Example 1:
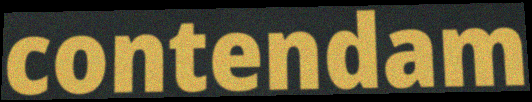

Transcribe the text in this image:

contendam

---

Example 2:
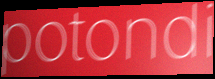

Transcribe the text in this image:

potondi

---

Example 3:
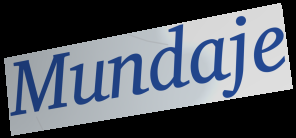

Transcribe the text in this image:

Mundaje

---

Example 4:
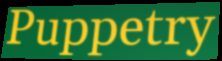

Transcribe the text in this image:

Puppetry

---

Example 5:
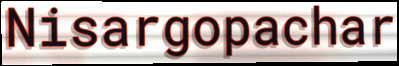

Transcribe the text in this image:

Nisargopachar